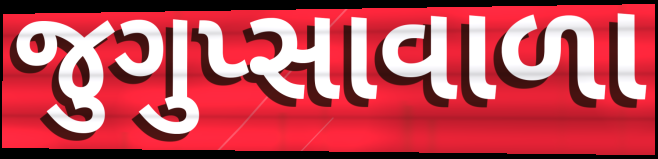
જુગુપ્સાવાળા